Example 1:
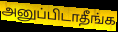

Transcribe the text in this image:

அனுப்பிடாதீங்க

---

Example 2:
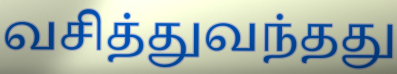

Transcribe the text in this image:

வசித்துவந்தது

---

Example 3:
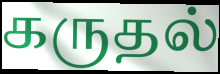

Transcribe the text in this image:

கருதல்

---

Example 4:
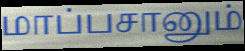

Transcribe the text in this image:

மாப்பசானும்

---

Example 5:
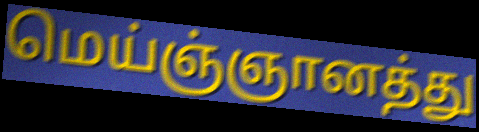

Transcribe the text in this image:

மெய்ஞ்ஞானத்து